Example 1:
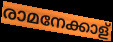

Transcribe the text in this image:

രാമനേക്കാള്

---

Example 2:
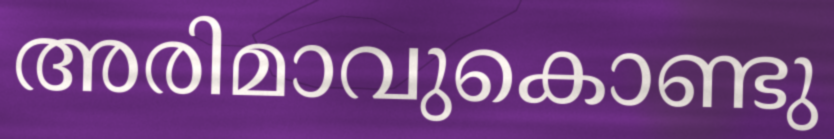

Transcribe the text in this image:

അരിമാവുകൊണ്ടു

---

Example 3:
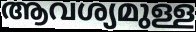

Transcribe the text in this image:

ആവശ്യമുള്ള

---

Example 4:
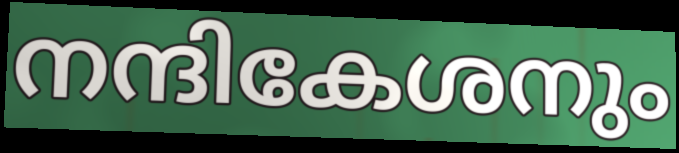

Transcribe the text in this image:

നന്ദികേശനും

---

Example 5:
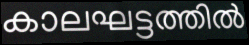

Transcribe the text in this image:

കാലഘട്ടത്തിൽ